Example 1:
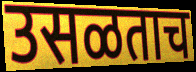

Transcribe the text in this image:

उसळताच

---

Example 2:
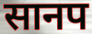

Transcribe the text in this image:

सानप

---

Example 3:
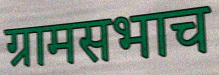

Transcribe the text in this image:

ग्रामसभाच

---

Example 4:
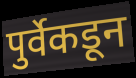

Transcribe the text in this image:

पुर्वेकडून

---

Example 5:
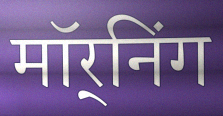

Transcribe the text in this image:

मॉर्निंग